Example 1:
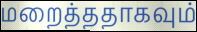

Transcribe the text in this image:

மறைத்ததாகவும்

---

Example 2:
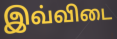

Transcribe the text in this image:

இவ்விடை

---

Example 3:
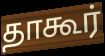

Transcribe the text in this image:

தாகூர்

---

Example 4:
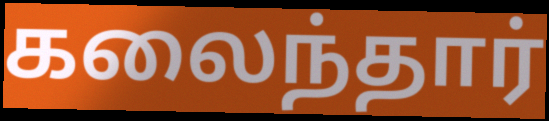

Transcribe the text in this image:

கலைந்தார்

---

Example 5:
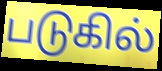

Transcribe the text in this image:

படுகில்